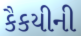
કૈકયીની